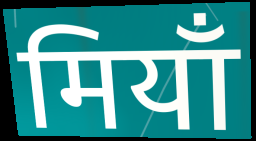
मियाँ